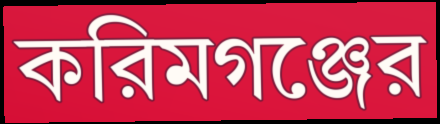
করিমগঞ্জের